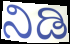
ನಿಡಿ